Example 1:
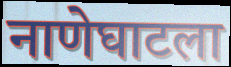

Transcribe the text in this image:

नाणेघाटला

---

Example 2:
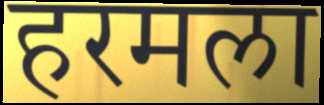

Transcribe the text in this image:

हरमला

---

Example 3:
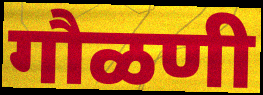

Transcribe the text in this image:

गौळणी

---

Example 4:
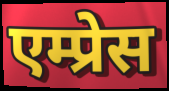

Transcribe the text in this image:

एम्प्रेस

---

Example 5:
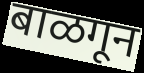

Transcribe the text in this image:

बाळगून